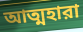
আত্মহারা